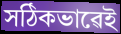
সঠিকভাৱেই